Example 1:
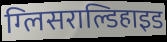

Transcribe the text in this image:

ग्लिसराल्डिहाइड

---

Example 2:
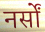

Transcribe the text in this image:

नर्सों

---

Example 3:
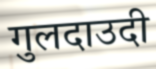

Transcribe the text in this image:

गुलदाउदी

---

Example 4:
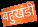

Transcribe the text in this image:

बहुखंडी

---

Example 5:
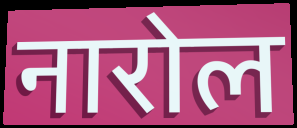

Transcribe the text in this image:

नारोल